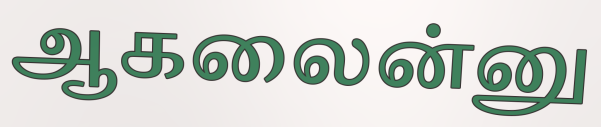
ஆகலைன்னு